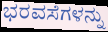
ಭರವಸೆಗಳನ್ನು